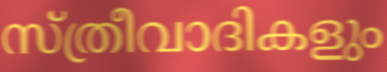
സ്ത്രീവാദികളും